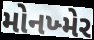
મોનખ્મેર